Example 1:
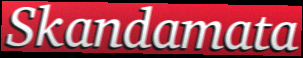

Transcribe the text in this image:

Skandamata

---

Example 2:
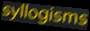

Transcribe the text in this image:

syllogisms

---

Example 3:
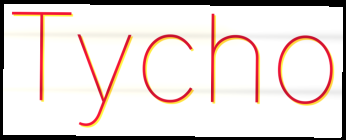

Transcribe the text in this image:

Tycho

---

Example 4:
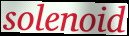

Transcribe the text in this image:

solenoid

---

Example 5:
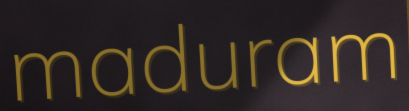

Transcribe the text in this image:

maduram